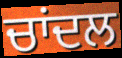
ਚਾਂਦਲ